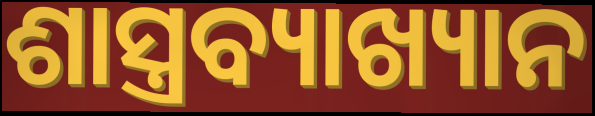
ଶାସ୍ତ୍ରବ୍ୟାଖ୍ୟାନ